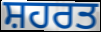
ਸ਼ਹਰਤ